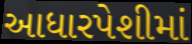
આધારપેશીમાં